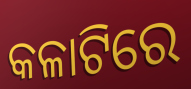
କଳାଟିରେ